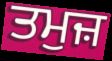
ਤਮੁਜ਼